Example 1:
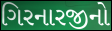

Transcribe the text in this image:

ગિરનારજીનો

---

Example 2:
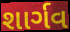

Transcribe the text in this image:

શાર્ગવ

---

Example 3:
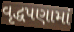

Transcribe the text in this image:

વૃદ્ધપણામાં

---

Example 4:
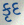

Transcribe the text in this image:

કૃદ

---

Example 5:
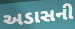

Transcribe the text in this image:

અડાસની